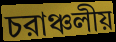
চরাঞ্চলীয়